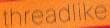
threadlike